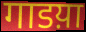
गाडय़ा